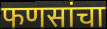
फणसांचा